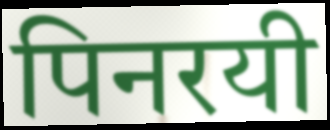
पिनरयी